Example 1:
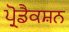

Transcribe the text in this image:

ਪ੍ਰੋਡੈਕਸ਼ਨ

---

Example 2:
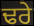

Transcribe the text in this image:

ਢਰੇ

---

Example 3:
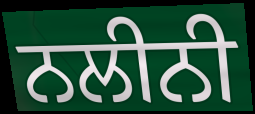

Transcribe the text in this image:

ਨਲੀਨੀ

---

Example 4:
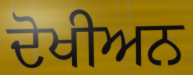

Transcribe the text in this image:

ਦੋਖੀਅਨ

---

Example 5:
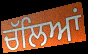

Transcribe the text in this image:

ਚੱਲਿਆਂ